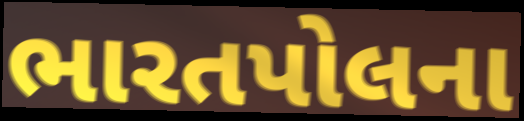
ભારતપોલના